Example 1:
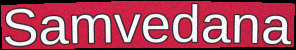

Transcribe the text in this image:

Samvedana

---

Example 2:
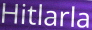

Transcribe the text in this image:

Hitlarla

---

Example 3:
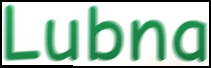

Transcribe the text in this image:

Lubna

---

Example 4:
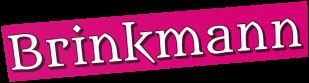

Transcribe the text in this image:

Brinkmann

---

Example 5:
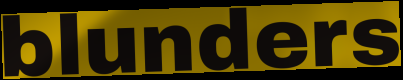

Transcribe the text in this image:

blunders